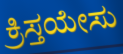
ಕ್ರಿಸ್ತಯೇಸು